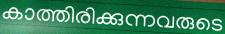
കാത്തിരിക്കുന്നവരുടെ